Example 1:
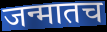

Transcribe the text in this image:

जन्मातच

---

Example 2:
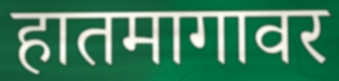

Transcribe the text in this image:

हातमागावर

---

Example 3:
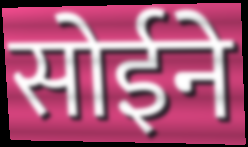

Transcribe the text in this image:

सोईने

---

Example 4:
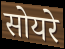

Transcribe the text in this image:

सोयरे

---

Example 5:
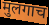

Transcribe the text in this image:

मुलगाच